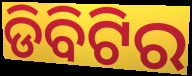
ଡିବିଟିର